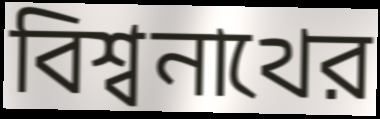
বিশ্বনাথের